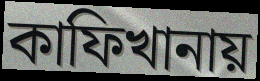
কাফিখানায়